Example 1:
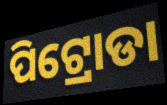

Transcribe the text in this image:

ପିଟ୍ରୋଡା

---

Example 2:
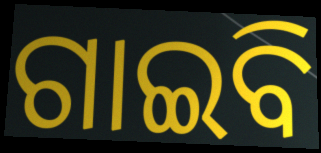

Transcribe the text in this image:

ଗାଇବି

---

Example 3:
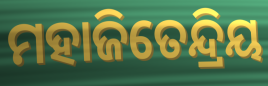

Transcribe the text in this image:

ମହାଜିତେନ୍ଦ୍ରିୟ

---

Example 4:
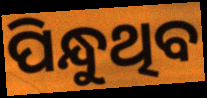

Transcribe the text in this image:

ପିନ୍ଧୁଥିବ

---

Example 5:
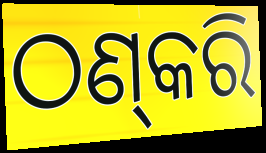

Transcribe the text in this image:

ଠଣ୍‌କରି